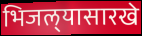
भिजल्यासारखे